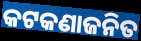
କଟକଣାଜନିତ